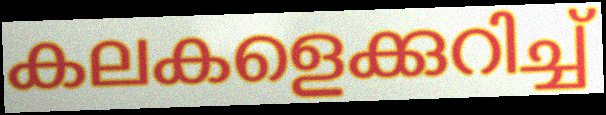
കലകളെക്കുറിച്ച്